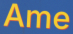
Ame